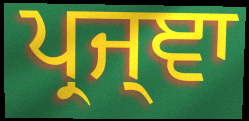
ਪ੍ਰਜ੍ਞਾ